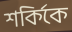
শর্কিকে